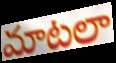
మాటలా